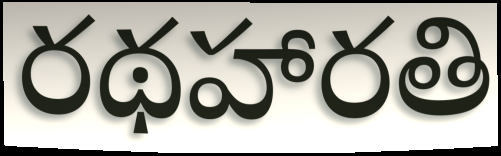
రథహారతి